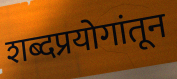
शब्दप्रयोगांतून